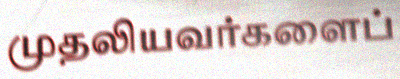
முதலியவர்களைப்